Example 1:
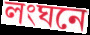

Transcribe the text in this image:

লংঘনে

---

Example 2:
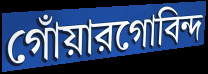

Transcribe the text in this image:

গোঁয়ারগোবিন্দ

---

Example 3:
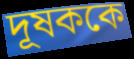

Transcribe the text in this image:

দূষককে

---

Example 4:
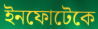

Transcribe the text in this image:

ইনফোটেকে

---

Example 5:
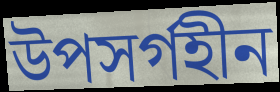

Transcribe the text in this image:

উপসর্গহীন